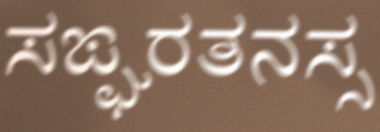
ಸಙ್ಘರತನಸ್ಸ